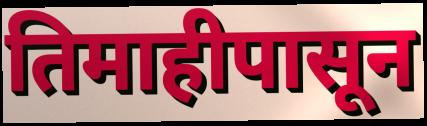
तिमाहीपासून